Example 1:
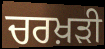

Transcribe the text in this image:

ਚਰਖ਼ੜੀ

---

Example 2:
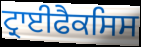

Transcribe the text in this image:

ਟ੍ਰਾਈਫੈਕਸਿਸ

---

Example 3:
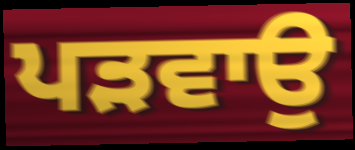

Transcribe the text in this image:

ਪੜਵਾਉ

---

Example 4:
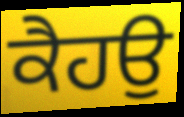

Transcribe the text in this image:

ਕੈਹਉ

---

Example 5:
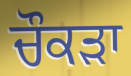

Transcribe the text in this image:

ਚੌਕੜਾ